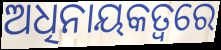
ଅଧିନାୟକତ୍ବରେ